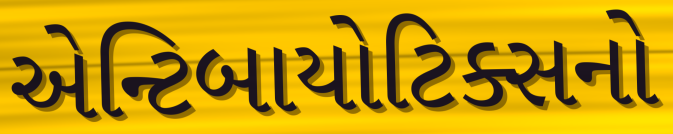
એન્ટિબાયોટિક્સનો